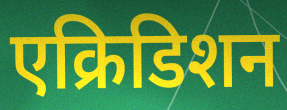
एक्रिडिशन